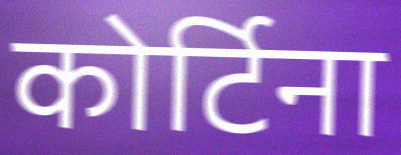
कोर्टिना